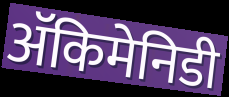
ॲकिमेनिडी